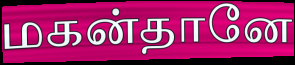
மகன்தானே